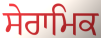
ਸੇਰਾਮਿਕ